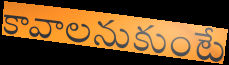
కావాలనుకుంటే